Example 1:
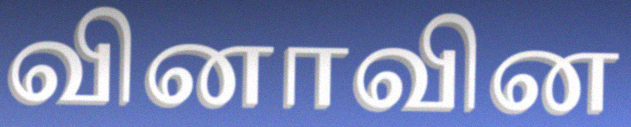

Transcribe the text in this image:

வினாவின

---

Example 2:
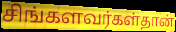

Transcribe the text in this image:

சிங்களவர்கள்தான்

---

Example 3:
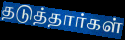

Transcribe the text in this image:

தடுத்தார்கள்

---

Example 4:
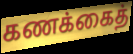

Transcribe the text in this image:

கணக்கைத்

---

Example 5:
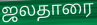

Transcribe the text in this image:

ஜலதாரை